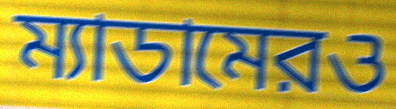
ম্যাডামেরও